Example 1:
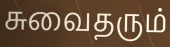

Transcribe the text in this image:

சுவைதரும்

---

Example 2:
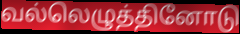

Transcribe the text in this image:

வல்லெழுத்தினோடு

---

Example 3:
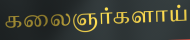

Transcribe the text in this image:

கலைஞர்களாய்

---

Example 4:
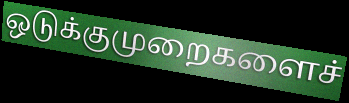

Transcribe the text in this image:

ஒடுக்குமுறைகளைச்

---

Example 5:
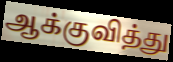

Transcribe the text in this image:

ஆக்குவித்து